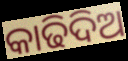
କାଢିଦିଅ